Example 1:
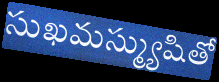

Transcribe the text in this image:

సుఖమస్మ్యుషితో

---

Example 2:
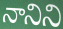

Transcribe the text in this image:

నానిని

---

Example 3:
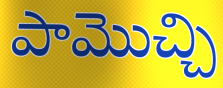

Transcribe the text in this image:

పామొచ్చి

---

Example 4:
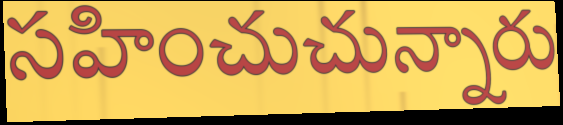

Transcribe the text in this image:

సహించుచున్నారు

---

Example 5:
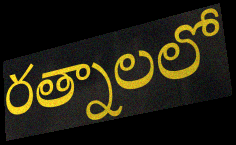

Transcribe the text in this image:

రత్నాలలో